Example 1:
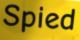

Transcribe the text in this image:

Spied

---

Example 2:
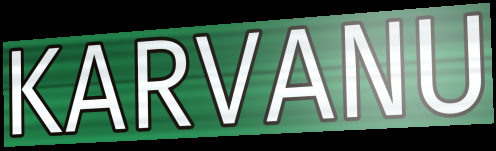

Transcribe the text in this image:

KARVANU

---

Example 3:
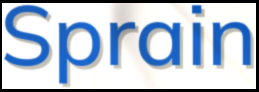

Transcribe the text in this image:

Sprain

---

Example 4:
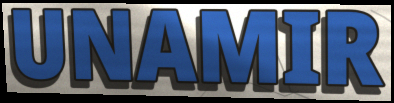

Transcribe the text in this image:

UNAMIR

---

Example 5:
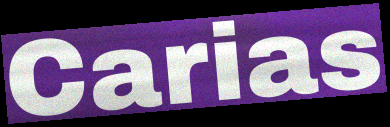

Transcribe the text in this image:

Carias